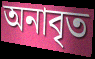
অনাবৃত